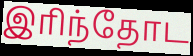
இரிந்தோட